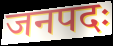
जनपदः